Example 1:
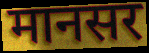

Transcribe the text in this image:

मानसर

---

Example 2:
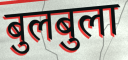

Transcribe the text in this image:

बुलबुला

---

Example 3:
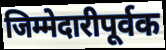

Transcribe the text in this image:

जिम्मेदारीपूर्वक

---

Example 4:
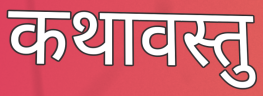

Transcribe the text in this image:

कथावस्तु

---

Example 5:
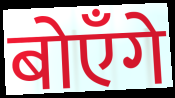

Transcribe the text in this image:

बोएँगे